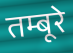
तम्बूरे